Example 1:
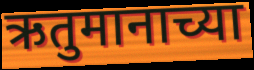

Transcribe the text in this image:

ऋतुमानाच्या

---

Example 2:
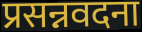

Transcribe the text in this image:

प्रसन्नवदना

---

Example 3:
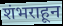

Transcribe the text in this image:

शंभराहून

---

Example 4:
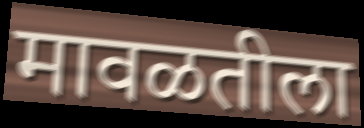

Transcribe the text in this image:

मावळतीला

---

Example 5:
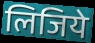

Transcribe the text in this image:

लिजिये